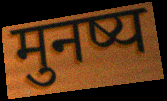
मुनष्य